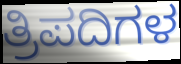
ತ್ರಿಪದಿಗಳ